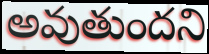
అవుతుందని